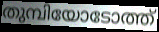
തുമ്പിയോടോത്ത്